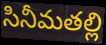
సినీమతల్లి